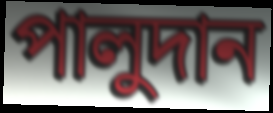
পালুদান